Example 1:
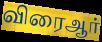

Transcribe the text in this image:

விரைஆர்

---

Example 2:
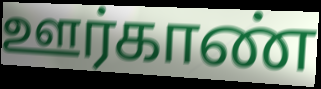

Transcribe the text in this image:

ஊர்காண்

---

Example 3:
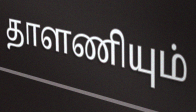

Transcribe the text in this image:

தாளணியும்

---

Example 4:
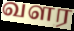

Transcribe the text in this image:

வளர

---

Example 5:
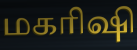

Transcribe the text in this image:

மகரிஷி